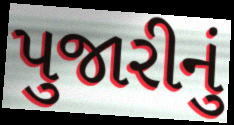
પુજારીનું